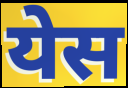
येस